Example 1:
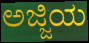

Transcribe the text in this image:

ಅಜ್ಜಿಯ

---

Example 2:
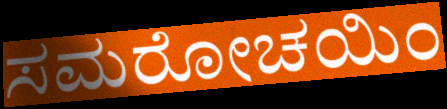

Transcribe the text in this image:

ಸಮರೋಚಯಿಂ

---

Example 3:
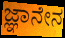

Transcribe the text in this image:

ಜ್ಞಾನೇನ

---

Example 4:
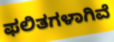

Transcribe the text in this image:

ಫಲಿತಗಳಾಗಿವೆ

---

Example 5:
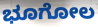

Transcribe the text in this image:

ಭೂಗೋಲ